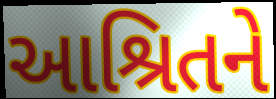
આશ્રિતને